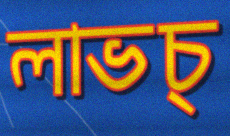
লাভচ্